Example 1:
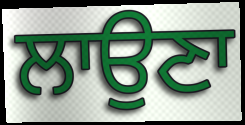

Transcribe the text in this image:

ਲਾਉਣਾ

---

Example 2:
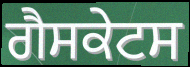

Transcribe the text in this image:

ਗੈਸਕੇਟਸ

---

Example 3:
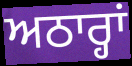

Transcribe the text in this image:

ਅਠਾਰ੍ਹਾਂ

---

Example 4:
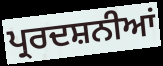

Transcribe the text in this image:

ਪ੍ਰਰਦਸ਼ਨੀਆਂ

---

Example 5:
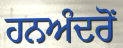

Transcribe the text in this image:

ਹਨਅੰਦਰੋਂ